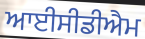
ਆਈਸੀਡੀਐਮ